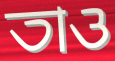
তাও